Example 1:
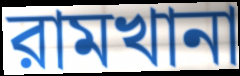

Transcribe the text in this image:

রামখানা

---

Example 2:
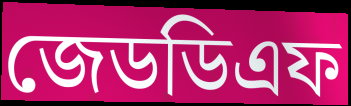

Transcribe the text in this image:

জেডডিএফ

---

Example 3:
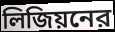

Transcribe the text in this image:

লিজিয়নের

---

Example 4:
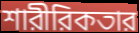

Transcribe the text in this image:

শারীরিকতার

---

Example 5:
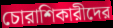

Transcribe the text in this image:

চোরাশিকারীদের